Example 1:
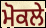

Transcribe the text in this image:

ਮੋਕਲੇ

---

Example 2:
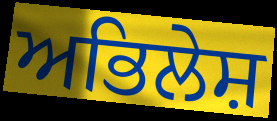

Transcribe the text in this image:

ਅਭਿਲੇਸ਼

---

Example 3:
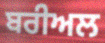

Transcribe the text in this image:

ਬਰੀਅਲ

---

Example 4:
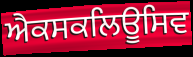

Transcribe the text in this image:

ਐਕਸਕਲਿਊਸਿਵ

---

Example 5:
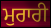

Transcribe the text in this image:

ਮੁਰਾਰੀ